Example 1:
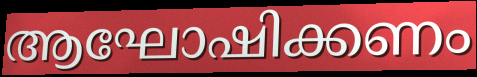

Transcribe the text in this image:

ആഘോഷിക്കണം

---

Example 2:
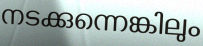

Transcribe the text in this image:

നടക്കുന്നെങ്കിലും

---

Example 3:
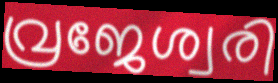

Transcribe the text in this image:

വ്രജേശ്വരി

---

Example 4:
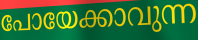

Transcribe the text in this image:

പോയേക്കാവുന്ന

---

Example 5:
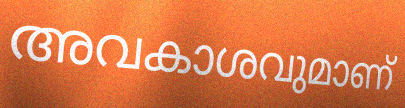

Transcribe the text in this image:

അവകാശവുമാണ്